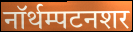
नॉर्थम्पटनशर